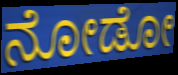
ನೋಡೋ